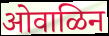
ओवाळिन